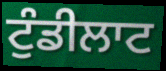
ਟੁੰਡੀਲਾਟ